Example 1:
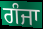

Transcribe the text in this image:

ਗੰਜਾ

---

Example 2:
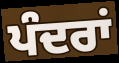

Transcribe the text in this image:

ਪੰਦਰਾਂ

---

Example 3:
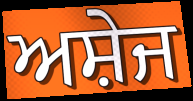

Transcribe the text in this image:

ਅਸ਼ੇਜ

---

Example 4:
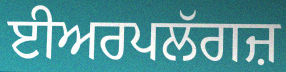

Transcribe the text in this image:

ਈਅਰਪਲੱਗਜ਼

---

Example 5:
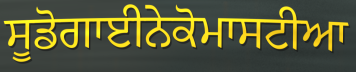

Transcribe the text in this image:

ਸੂਡੋਗਾਈਨੇਕੋਮਾਸਟੀਆ